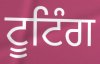
ਟੂਟਿੰਗ